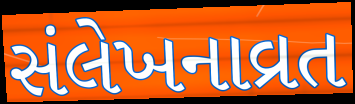
સંલેખનાવ્રત